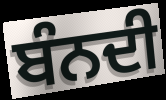
ਬੰਨਦੀ